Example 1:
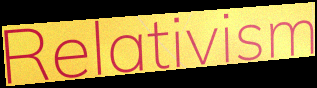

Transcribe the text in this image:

Relativism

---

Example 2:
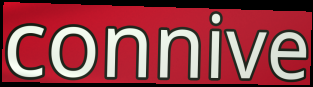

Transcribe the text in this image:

connive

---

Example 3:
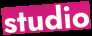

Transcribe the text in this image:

studio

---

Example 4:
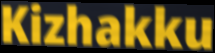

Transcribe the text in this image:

Kizhakku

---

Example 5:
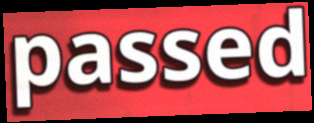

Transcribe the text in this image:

passed